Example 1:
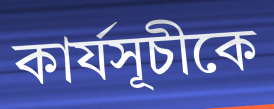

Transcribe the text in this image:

কার্যসূচীকে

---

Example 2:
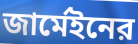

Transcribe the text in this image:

জার্মেইনের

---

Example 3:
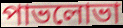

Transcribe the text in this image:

পাভলোভা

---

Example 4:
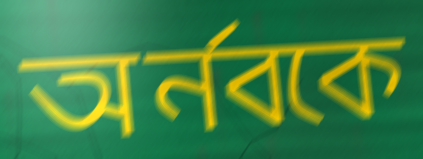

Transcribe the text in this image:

অর্নবকে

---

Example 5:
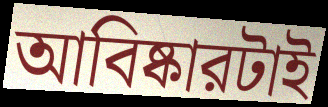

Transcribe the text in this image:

আবিষ্কারটাই